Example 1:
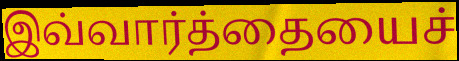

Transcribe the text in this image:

இவ்வார்த்தையைச்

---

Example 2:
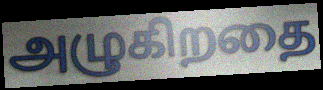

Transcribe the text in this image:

அழுகிறதை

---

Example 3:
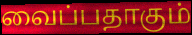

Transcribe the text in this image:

வைப்பதாகும்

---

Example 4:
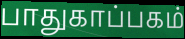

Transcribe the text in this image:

பாதுகாப்பகம்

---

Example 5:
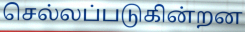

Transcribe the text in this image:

செல்லப்படுகின்றன